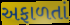
અફાળતાં